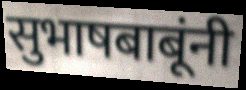
सुभाषबाबूंनी